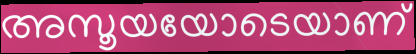
അസൂയയോടെയാണ്